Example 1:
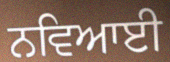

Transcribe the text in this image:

ਨਵਿਆਈ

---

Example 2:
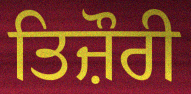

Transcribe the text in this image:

ਤਿਜ਼ੌਰੀ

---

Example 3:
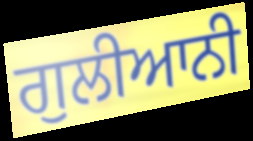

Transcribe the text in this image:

ਗੁਲੀਆਨੀ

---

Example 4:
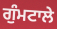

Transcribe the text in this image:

ਗੁੰਮਟਾਲੇ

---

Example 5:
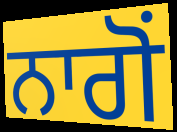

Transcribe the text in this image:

ਨਾਗੋਂ